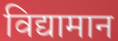
विद्यामान